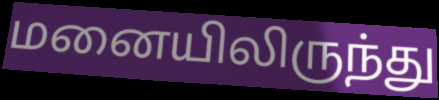
மனையிலிருந்து